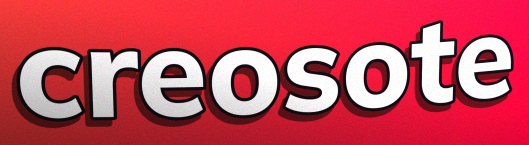
creosote